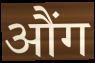
औंग